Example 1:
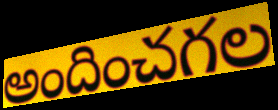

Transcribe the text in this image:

అందించగల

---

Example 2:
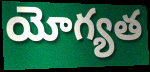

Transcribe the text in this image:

యోగ్యత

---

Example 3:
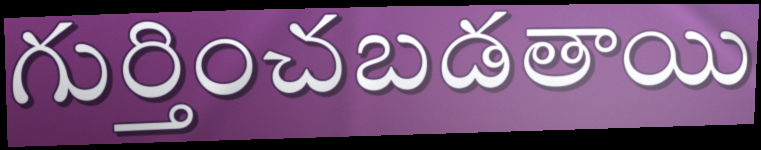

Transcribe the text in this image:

గుర్తించబడతాయి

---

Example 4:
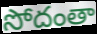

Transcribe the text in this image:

సోదంతా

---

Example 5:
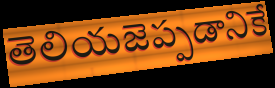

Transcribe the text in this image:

తెలియజెప్పడానికే